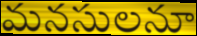
మనసులనూ